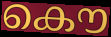
കൌ